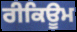
ਰੀਕਿਊਮ